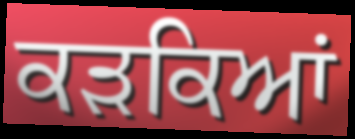
ਕੜਕਿਆਂ